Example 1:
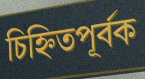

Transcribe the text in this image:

চিহ্নিতপূর্বক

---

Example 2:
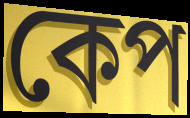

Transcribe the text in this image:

কেপ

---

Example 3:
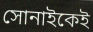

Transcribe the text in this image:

সোনাইকেই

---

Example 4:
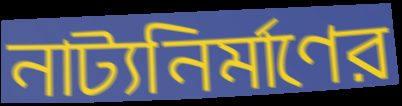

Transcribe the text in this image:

নাট্যনির্মাণের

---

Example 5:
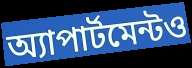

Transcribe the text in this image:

অ্যাপার্টমেন্টও